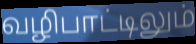
வழிபாட்டிலும்